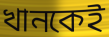
খানকেই